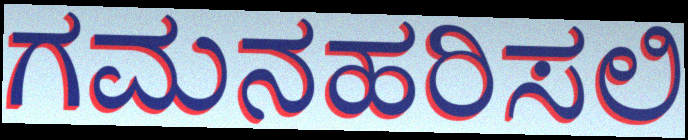
ಗಮನಹರಿಸಲಿ